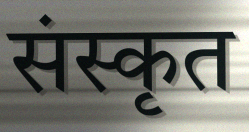
संस्‍कृत